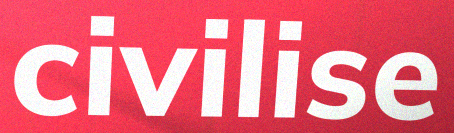
civilise